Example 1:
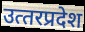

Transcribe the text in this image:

उत्‍तरप्रदेश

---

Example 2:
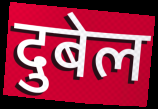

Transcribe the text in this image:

दुबेल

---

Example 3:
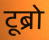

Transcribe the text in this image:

टूब्रो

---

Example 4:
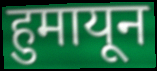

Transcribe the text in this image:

हुमायून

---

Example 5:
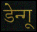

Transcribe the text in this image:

डेन्गू